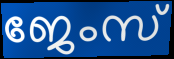
ജേംസ്